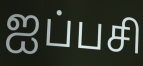
ஐப்பசி